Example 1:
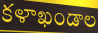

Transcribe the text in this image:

కళాఖండాల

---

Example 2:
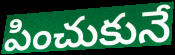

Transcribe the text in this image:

పించుకునే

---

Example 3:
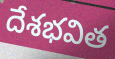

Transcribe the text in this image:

దేశభవిత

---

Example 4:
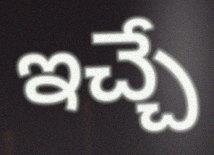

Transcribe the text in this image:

ఇచ్చే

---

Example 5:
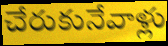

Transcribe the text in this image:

చేరుకునేవాళ్లు